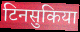
टिनसुकिया